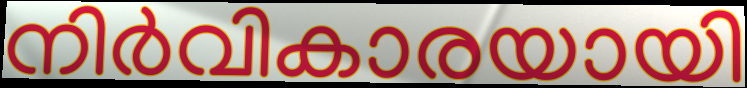
നിർവികാരയായി